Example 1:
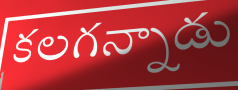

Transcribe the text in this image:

కలగన్నాడు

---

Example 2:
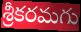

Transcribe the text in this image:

శ్రీకరమగు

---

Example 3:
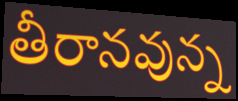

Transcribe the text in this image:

తీరానవున్న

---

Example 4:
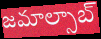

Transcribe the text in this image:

జమాల్సాబ్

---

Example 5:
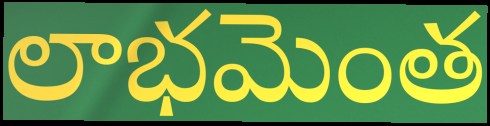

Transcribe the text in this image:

లాభమెంత